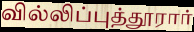
வில்லிப்புத்தூரார்